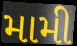
મામી